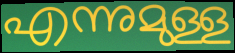
എന്നുമുള്ള